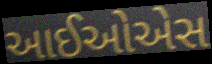
આઈઓએસ